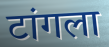
टांगला